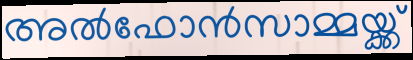
അൽഫോൻസാമ്മയ്ക്ക്